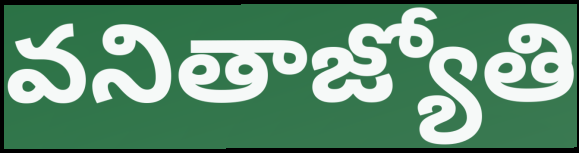
వనితాజ్యోతి